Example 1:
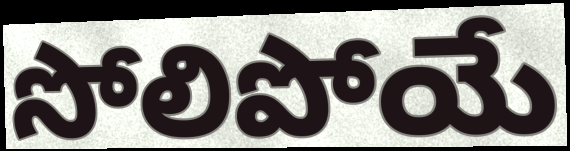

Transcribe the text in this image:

సోలిపోయే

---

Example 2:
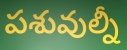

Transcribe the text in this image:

పశువుల్నీ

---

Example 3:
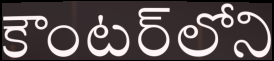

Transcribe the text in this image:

కౌంటర్‌లోని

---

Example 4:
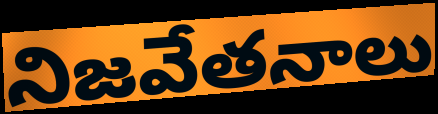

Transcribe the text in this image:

నిజవేతనాలు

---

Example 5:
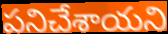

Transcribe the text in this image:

పనిచేశాయని